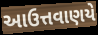
આઉત્તવાણયે